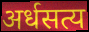
अर्धसत्य